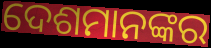
ଦେଶମାନଙ୍କର